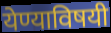
येण्याविषयी